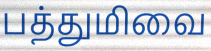
பத்துமிவை